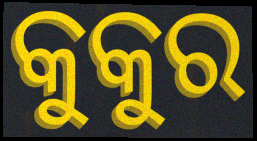
କୁକୁର